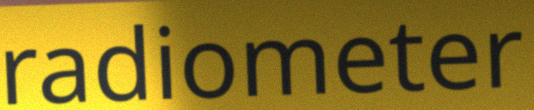
radiometer